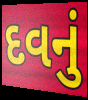
દવનું